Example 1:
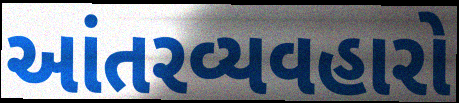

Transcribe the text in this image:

આંતરવ્યવહારો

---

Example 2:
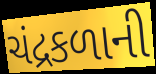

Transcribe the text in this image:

ચંદ્રકળાની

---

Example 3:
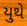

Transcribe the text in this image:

યુથે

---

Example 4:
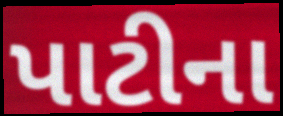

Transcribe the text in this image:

પાટીના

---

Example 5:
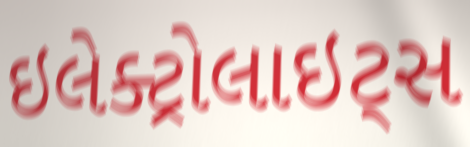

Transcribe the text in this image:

ઇલેક્ટ્રોલાઇટ્સ